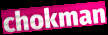
chokman